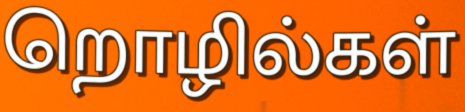
றொழில்கள்